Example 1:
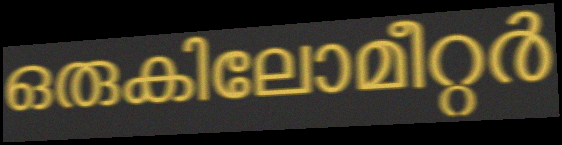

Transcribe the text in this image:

ഒരുകിലോമീറ്റർ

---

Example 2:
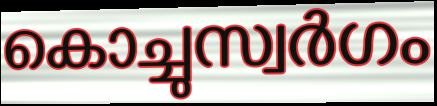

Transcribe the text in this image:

കൊച്ചുസ്വർഗം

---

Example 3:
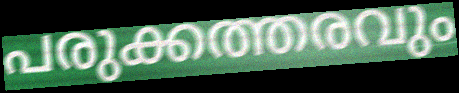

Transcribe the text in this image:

പരുക്കത്തരവും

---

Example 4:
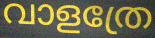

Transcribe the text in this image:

വാളത്രേ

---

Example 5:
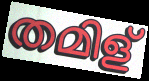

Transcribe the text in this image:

തമിള്